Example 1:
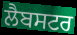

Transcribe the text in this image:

ਲੈਬਸਟਰ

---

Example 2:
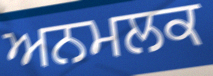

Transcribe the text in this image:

ਅਨਮਲਕ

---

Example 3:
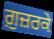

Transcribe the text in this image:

ਗ਼ੁਜ਼ਰਕੇ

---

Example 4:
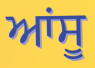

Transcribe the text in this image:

ਆਂਸੂ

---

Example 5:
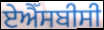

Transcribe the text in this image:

ਏਐੱਸਬੀਸੀ